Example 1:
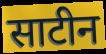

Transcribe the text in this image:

साटीन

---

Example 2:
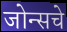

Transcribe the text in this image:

जोन्सचे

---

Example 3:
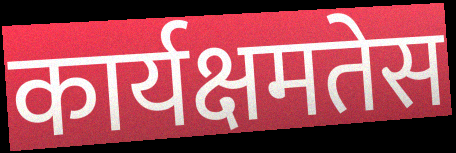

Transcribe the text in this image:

कार्यक्षमतेस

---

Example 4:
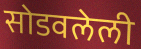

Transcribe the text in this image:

सोडवलेली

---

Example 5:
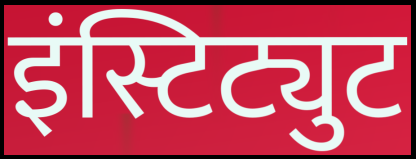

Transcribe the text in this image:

इंस्टिट्युट